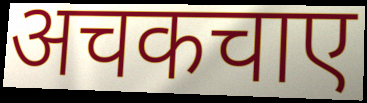
अचकचाए